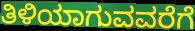
ತಿಳಿಯಾಗುವವರೆಗೆ